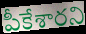
పీకేశారని